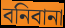
বনিবানা